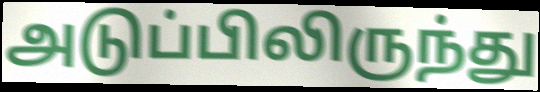
அடுப்பிலிருந்து